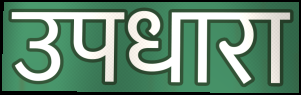
उपधारा